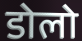
डोलो